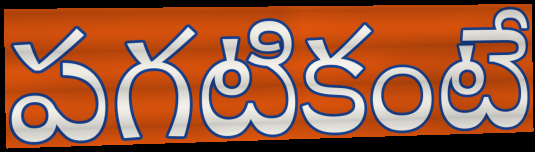
పగటికంటే